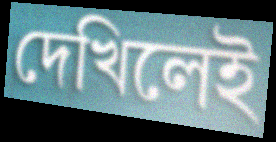
দেখিলেই